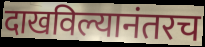
दाखविल्यानंतरच